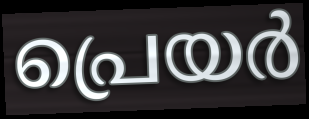
പ്രെയർ